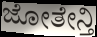
ಜೋತೇನ್ತಿ